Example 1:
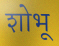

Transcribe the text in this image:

शोभू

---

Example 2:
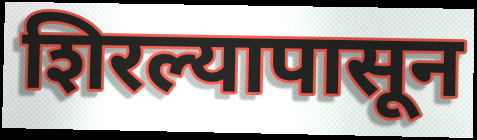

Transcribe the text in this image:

शिरल्यापासून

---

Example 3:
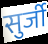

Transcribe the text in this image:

सुर्जी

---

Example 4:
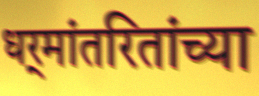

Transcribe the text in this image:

धर्मांतरितांच्या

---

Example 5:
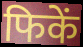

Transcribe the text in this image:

फिकें